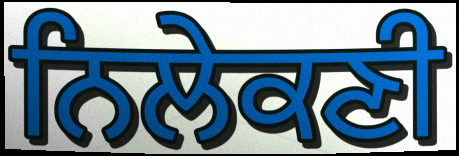
ਨਿਲੇਕਣੀ